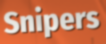
Snipers